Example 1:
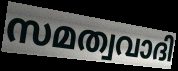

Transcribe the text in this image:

സമത്വവാദി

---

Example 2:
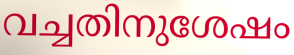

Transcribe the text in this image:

വച്ചതിനുശേഷം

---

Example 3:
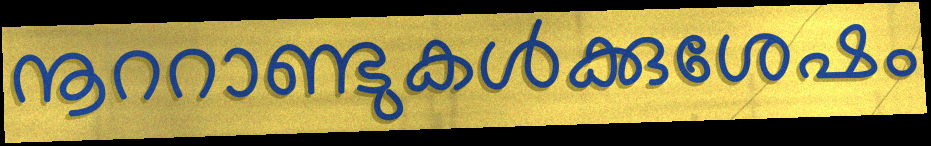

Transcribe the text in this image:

നൂററാണ്ടുകൾക്കുശേഷം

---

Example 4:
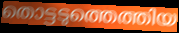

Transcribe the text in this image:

തൊട്ടടുത്തെത്തിയ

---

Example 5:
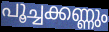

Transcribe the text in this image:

പൂച്ചക്കണ്ണും